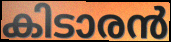
കിടാരൻ